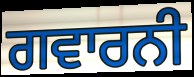
ਗਵਾਰਨੀ